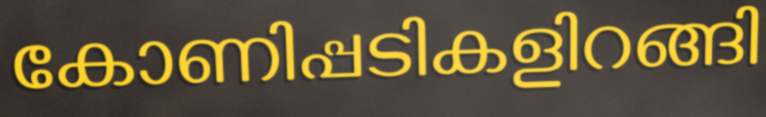
കോണിപ്പടികളിറങ്ങി